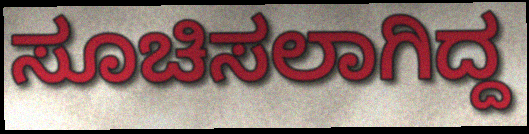
ಸೂಚಿಸಲಾಗಿದ್ದ